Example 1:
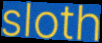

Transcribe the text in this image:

sloth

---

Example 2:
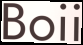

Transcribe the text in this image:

Boii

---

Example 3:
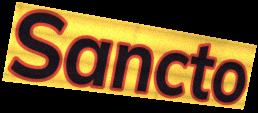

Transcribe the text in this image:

Sancto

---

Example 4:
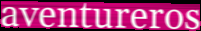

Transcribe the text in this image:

aventureros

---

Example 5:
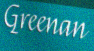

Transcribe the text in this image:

Greenan